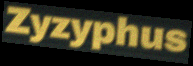
Zyzyphus